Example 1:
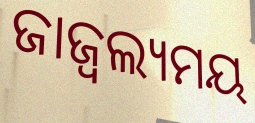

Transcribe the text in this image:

ଜାଜ୍ୱଲ୍ୟମୟ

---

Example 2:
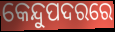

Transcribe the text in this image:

କେନ୍ଦୁପଦରରେ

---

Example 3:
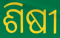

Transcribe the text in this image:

ଶିଷୀ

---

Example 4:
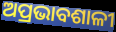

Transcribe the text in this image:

ଅପ୍ରଭାବଶାଳୀ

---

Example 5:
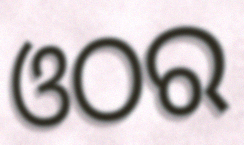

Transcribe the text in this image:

ଓଠର